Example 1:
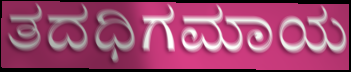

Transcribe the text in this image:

ತದಧಿಗಮಾಯ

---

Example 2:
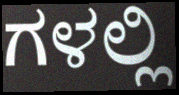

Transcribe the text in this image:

ಗಳಲ್ಲಿ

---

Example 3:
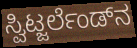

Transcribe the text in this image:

ಸ್ವಿಟ್ಜರ್ಲೆಂಡ್‌ನ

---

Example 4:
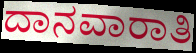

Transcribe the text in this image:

ದಾನವಾರಾತಿ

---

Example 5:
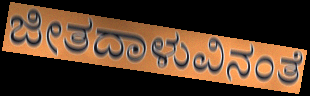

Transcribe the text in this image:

ಜೀತದಾಳುವಿನಂತೆ